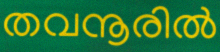
തവനൂരിൽ